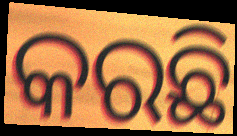
କରଛି